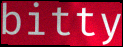
bitty